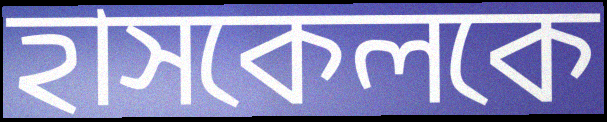
হাসকেলকে